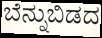
ಬೆನ್ನುಬಿಡದ